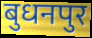
बुधनपुर